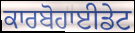
ਕਾਰਬੋਹਾਈਡੇਟ